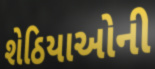
શેઠિયાઓની